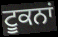
ਟੂਕਨਾਂ